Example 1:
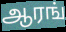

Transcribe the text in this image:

ஆரங்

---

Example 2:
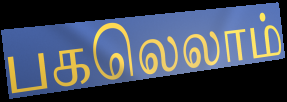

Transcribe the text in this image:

பகலெலாம்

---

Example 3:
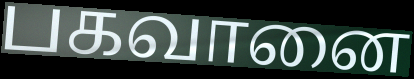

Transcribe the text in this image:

பகவானை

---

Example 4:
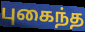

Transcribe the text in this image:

புகைந்த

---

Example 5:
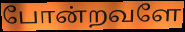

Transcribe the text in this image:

போன்றவளே